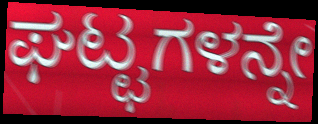
ಘಟ್ಟಗಳನ್ನೇ